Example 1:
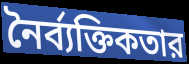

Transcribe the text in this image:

নৈর্ব্যক্তিকতার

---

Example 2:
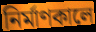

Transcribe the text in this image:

নির্মাণকালে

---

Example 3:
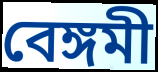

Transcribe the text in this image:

বেঙ্গমী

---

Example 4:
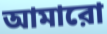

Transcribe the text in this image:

আমারো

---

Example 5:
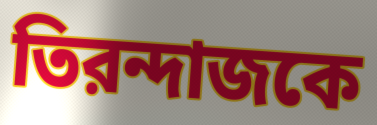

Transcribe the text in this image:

তিরন্দাজকে